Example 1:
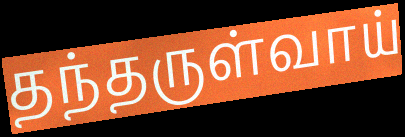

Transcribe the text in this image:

தந்தருள்வாய்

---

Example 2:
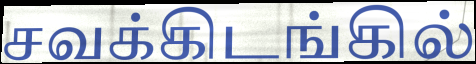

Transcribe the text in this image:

சவக்கிடங்கில்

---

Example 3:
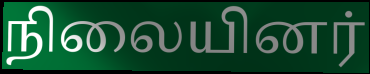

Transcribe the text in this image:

நிலையினர்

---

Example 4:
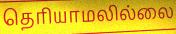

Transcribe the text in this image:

தெரியாமலில்லை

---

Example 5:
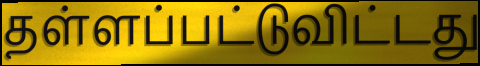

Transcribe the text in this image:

தள்ளப்பட்டுவிட்டது